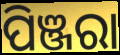
ପିଞ୍ଜରା